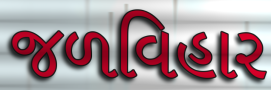
જળવિહાર